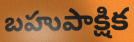
బహుపాక్షిక